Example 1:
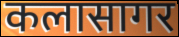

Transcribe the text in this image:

कलासागर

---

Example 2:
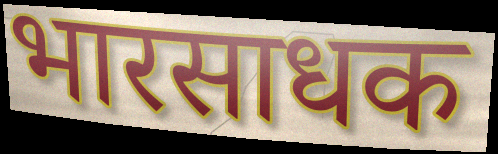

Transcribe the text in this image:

भारसाधक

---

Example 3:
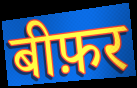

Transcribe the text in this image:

बीफ़र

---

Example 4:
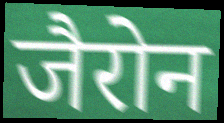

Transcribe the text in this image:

जैरोन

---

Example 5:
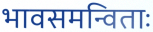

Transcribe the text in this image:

भावसमन्विताः